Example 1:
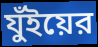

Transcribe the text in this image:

যুঁইয়ের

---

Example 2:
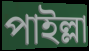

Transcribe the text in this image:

পাইল্লা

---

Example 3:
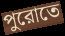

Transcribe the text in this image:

পুরোতে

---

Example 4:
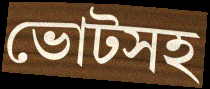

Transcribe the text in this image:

ভোটসহ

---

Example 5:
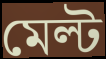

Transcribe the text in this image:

মেল্ট